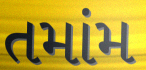
તમાંમ